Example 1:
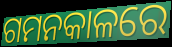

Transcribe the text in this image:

ଗମନକାଳରେ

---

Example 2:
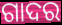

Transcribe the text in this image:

ଗାଦର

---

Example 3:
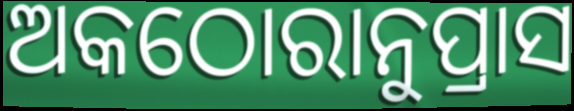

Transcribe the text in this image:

ଅକଠୋରାନୁପ୍ରାସ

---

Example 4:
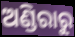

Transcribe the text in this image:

ଅଣ୍ଡିରାରୁ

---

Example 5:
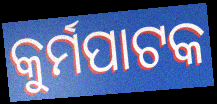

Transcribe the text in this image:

କୁର୍ମପାଟକ